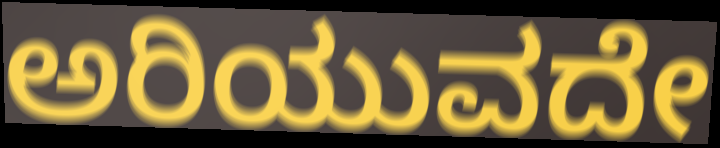
ಅರಿಯುವದೇ